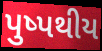
પુષ્પથીય